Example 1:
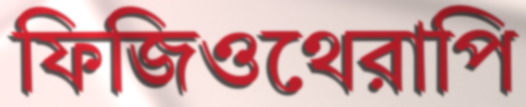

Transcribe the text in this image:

ফিজিওথেরাপি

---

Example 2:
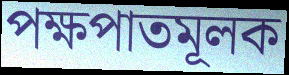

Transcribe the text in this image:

পক্ষপাতমূলক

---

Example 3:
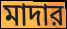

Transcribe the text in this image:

মাদার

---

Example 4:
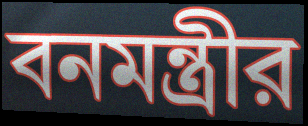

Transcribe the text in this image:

বনমন্ত্রীর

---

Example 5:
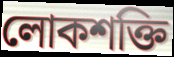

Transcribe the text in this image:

লোকশক্তি